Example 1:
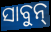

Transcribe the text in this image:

ସାବୁନ୍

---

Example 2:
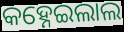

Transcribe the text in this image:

କହ୍ନେଇଲାଲ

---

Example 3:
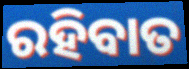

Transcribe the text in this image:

ରହିବାତ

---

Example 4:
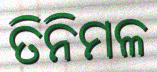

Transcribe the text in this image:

ତିନିମଳ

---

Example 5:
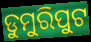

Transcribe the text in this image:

ଡୁମୁରିପୁଟ